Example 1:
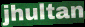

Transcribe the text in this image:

jhultan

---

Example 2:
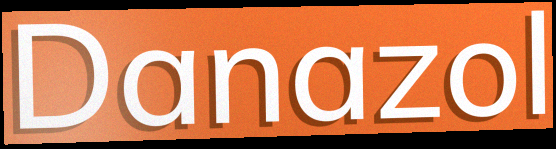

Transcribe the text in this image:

Danazol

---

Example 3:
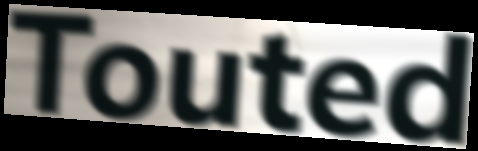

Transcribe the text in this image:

Touted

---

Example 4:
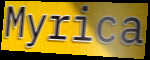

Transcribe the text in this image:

Myrica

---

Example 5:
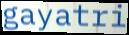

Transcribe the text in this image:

gayatri